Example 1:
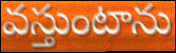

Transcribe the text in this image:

వస్తుంటాను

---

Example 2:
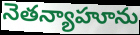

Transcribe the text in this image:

నెతన్యాహూను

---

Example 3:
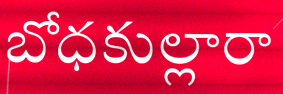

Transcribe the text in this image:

బోధకుల్లారా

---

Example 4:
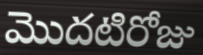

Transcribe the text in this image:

మొదటిరోజు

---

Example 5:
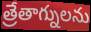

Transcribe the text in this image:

త్రేతాగ్నులను